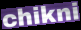
chikni